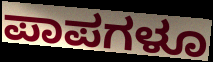
ಪಾಪಗಳೂ